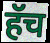
हॅच